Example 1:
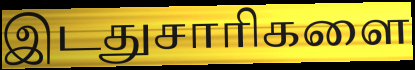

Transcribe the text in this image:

இடதுசாரிகளை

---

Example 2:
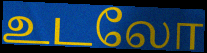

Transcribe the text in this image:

உடலோ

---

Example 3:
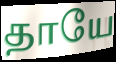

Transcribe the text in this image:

தாயே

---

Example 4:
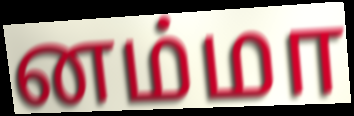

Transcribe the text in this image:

னம்மா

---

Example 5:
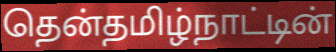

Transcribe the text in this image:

தென்தமிழ்நாட்டின்